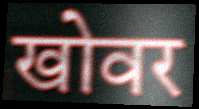
खोवर